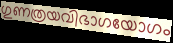
ഗുണത്രയവിഭാഗയോഗം